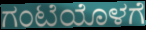
ಗಂಟೆಯೊಳಗೆ